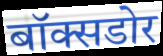
बॉक्सडोर